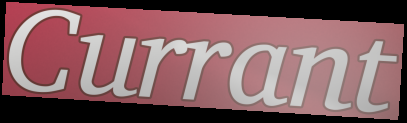
Currant